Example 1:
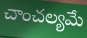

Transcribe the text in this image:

చాంచల్యమే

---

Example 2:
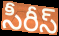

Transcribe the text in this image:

సీరీస్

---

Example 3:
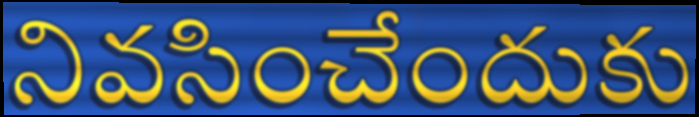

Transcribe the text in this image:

నివసించేందుకు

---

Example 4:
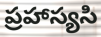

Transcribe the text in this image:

ప్రహాస్యసి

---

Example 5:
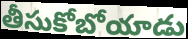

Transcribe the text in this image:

తీసుకోబోయాడు